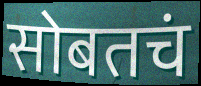
सोबतचं